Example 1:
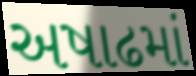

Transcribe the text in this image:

અષાઢમાં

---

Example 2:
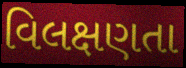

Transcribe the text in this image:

વિલક્ષણતા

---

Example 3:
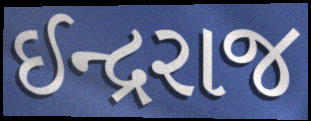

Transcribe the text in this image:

ઈન્દ્રરાજ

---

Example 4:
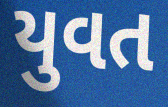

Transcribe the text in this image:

યુવત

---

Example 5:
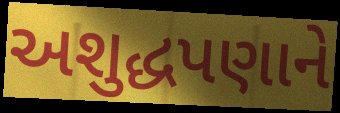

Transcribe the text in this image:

અશુદ્ધપણાને